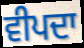
ਵੀਪਦਾ